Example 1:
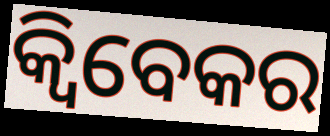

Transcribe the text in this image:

କ୍ୱିବେକର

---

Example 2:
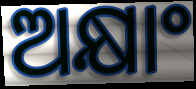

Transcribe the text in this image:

ଅକ୍ଷାଂ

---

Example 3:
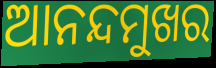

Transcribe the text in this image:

ଆନନ୍ଦମୁଖର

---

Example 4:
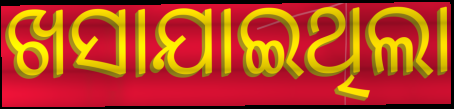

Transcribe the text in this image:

ଖସାଯାଇଥିଲା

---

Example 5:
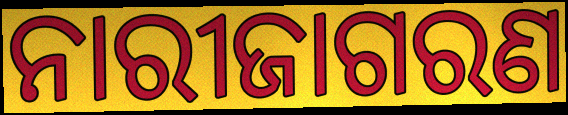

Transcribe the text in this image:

ନାରୀଜାଗରଣ